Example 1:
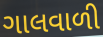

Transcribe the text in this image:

ગાલવાળી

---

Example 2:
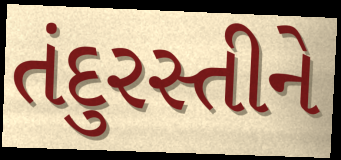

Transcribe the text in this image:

તંદુરસ્તીને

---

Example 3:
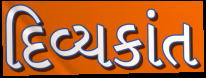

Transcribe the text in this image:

દિવ્યકાંત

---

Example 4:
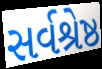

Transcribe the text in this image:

સર્વશ્રેષ્ઠ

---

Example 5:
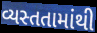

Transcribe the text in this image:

વ્યસ્તતામાંથી